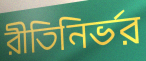
রীতিনির্ভর